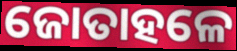
ଜୋତାହଳେ